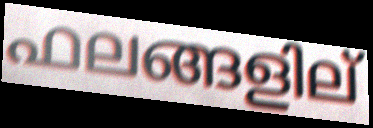
ഫലങ്ങളില്